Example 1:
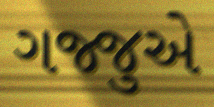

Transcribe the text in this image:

ગજ્જુએ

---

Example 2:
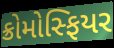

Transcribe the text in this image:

ક્રોમોસ્ફિયર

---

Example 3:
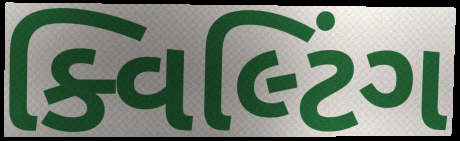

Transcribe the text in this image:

ક્વિલ્ટિંગ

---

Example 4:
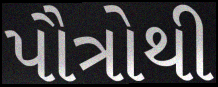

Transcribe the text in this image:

પૌત્રોથી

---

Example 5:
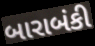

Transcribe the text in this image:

બારાબંકી